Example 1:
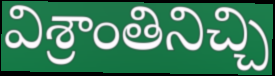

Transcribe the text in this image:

విశ్రాంతినిచ్చి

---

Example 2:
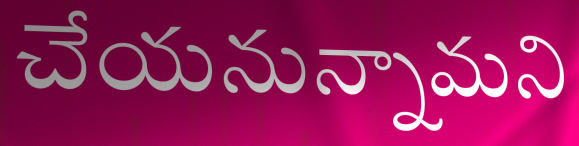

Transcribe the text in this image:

చేయనున్నామని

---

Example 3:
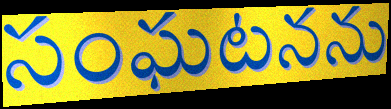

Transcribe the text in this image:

సంఘటనను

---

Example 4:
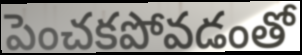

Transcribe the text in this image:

పెంచకపోవడంతో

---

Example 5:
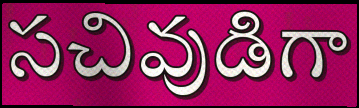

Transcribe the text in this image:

సచివుడిగా